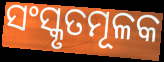
ସଂସ୍କୃତମୂଳକ